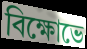
বিক্ষোভে